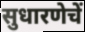
सुधारणेचें